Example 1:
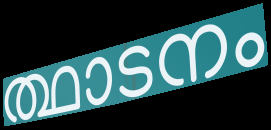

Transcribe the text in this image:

ത്ഥാടനം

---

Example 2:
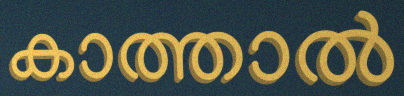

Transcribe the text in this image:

കാത്താൽ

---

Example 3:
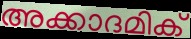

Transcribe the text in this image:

അക്കാദമിക്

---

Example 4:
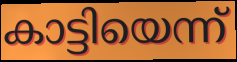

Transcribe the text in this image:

കാട്ടിയെന്ന്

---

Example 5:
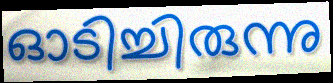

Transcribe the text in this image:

ഓടിച്ചിരുന്നു